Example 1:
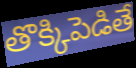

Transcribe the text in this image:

తొక్కిపెడితే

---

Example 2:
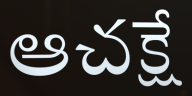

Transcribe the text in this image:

ఆచక్షే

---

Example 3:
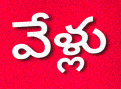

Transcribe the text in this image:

వేళ్లు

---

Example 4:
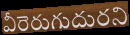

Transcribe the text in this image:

వీరెరుగుదురని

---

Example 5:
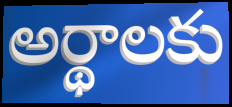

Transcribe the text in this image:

అర్థాలకు